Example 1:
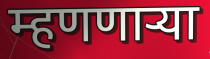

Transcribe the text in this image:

म्हणणाऱ्या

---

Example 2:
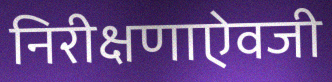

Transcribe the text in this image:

निरीक्षणाऐवजी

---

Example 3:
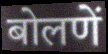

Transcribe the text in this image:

बोलणें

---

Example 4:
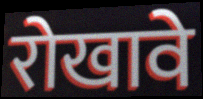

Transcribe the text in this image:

रोखावे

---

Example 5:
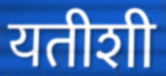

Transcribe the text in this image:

यतीशी